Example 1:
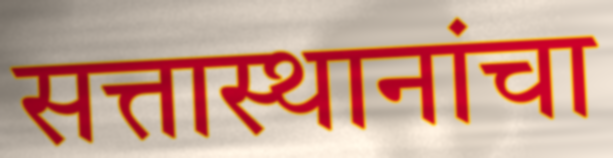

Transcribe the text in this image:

सत्तास्थानांचा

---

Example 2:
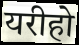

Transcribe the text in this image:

यरीहो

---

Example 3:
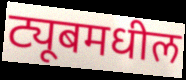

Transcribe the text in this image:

ट्यूबमधील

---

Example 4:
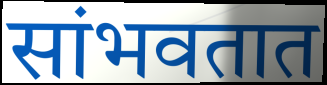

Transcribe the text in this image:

सांभवतात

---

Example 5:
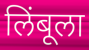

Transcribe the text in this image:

लिंबूला